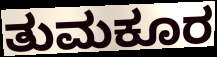
ತುಮಕೂರ